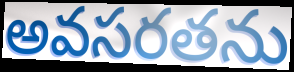
అవసరతను